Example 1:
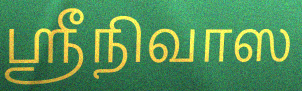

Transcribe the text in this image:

ஸ்ரீநிவாஸ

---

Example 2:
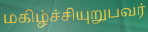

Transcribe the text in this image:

மகிழ்ச்சியுறுபவர்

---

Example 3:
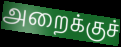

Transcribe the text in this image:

அறைக்குச்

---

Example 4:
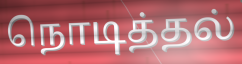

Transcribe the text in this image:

நொடித்தல்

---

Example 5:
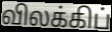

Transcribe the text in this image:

விலக்கிப்